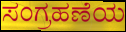
ಸಂಗ್ರಹಣೆಯ